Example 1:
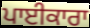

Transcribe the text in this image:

ਪਾਈਕਾਰਾ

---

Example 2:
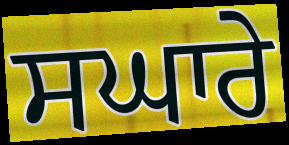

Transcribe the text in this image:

ਸਘਾਰੇ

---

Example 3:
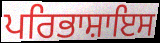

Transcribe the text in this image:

ਪਰਿਭਾਸ਼ਾਇਸ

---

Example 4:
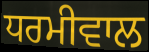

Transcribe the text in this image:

ਧਰਮੀਵਾਲ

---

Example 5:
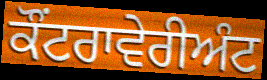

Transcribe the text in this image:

ਕੌਂਟਰਾਵੇਰੀਅੰਟ